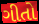
ગીતો